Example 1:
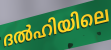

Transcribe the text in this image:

ദൽഹിയിലെ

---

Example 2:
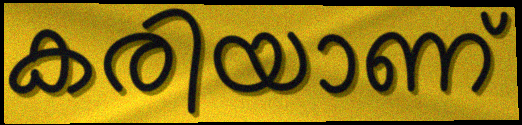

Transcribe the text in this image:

കരിയാണ്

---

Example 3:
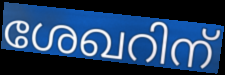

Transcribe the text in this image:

ശേഖറിന്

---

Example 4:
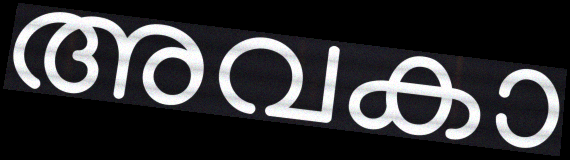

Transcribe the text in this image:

അവകാ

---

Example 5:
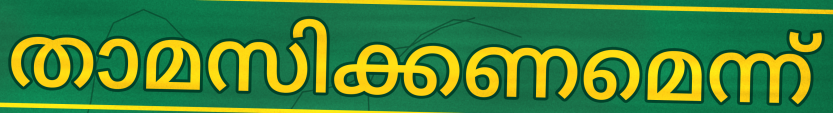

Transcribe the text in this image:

താമസിക്കണമെന്ന്